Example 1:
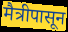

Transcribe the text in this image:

मैत्रीपासून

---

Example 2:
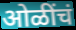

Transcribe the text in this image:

ओळींचं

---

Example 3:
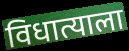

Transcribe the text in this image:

विधात्याला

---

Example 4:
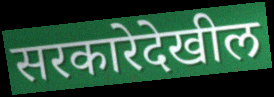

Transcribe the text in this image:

सरकारेदेखील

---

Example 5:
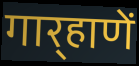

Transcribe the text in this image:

गार्‍हाणें